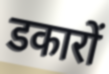
डकारों